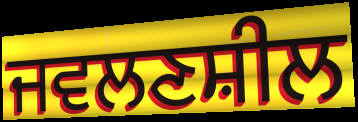
ਜਵਲਣਸ਼ੀਲ